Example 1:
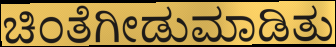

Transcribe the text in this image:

ಚಿಂತೆಗೀಡುಮಾಡಿತು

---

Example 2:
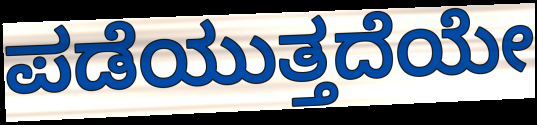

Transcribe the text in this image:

ಪಡೆಯುತ್ತದೆಯೇ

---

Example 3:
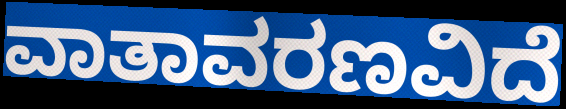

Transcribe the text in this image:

ವಾತಾವರಣವಿದೆ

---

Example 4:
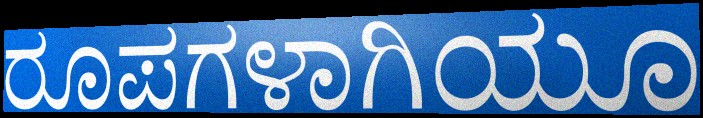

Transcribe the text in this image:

ರೂಪಗಳಾಗಿಯೂ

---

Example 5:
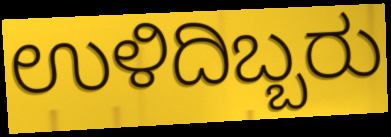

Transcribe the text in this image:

ಉಳಿದಿಬ್ಬರು